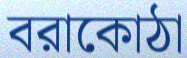
বরাকোঠা